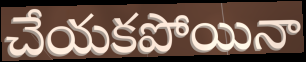
చేయకపోయినా